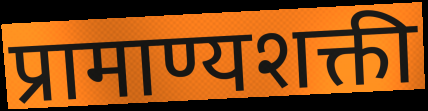
प्रामाण्यशक्ती